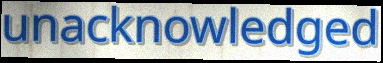
unacknowledged